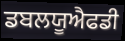
ਡਬਲਯੂਐਫਡੀ